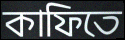
কাফিতে